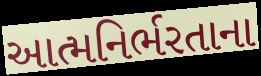
આત્મનિર્ભરતાના